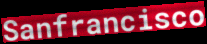
Sanfrancisco